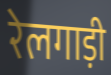
रेलगाड़ी